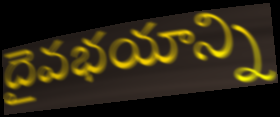
దైవభయాన్ని